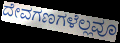
ದೇವಗಣಗಳೆಲ್ಲವೂ